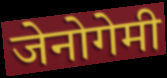
जेनोगेमी